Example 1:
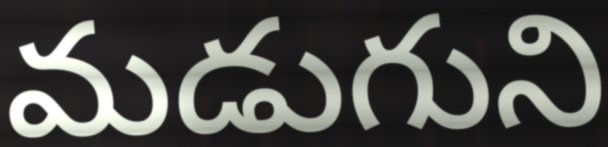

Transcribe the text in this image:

మడుగుని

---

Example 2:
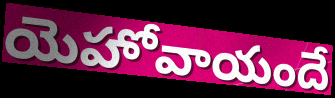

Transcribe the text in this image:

యెహోవాయందే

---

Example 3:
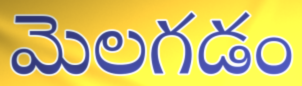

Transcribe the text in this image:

మెలగడం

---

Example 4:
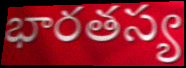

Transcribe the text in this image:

భారతస్య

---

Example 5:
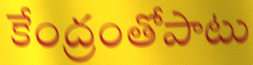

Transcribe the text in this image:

కేంద్రంతోపాటు